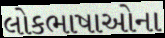
લોકભાષાઓના